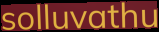
solluvathu